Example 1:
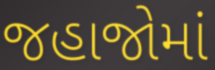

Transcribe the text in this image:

જહાજોમાં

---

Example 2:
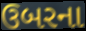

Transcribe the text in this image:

ઉબરના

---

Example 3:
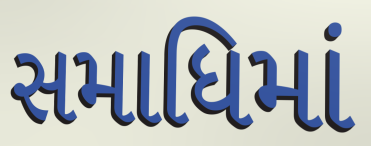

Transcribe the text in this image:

સમાધિમાં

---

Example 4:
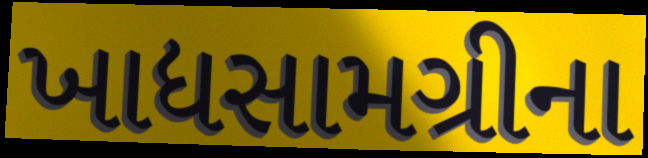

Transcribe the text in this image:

ખાદ્યસામગ્રીના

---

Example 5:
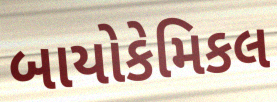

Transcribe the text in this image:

બાયોકેમિકલ